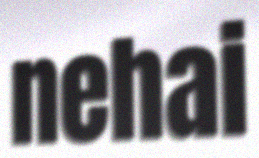
nehai